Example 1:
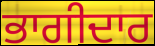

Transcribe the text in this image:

ਭਾਗੀਦਾਰ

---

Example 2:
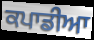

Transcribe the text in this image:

ਕਪਾਡੀਆ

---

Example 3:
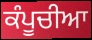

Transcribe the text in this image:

ਕੰਪੂਚੀਆ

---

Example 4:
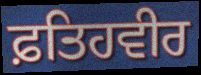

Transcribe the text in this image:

ਫ਼ਤਿਹਵੀਰ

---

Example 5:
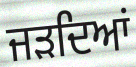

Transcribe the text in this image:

ਜੜਦਿਆਂ